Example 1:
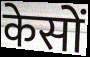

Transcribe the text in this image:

केसों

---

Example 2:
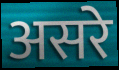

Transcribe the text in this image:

असरे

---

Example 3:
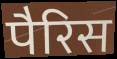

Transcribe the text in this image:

पैरिस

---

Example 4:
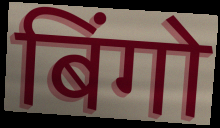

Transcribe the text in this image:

बिंगो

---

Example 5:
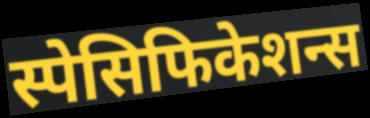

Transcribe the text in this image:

स्पेसिफिकेशन्स